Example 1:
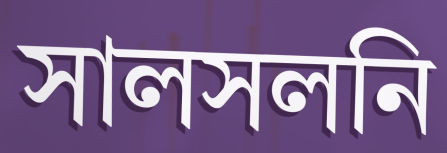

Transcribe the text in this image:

সালসলনি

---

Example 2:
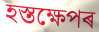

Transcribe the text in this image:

হস্তক্ষেপৰ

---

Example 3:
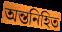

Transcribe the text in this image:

অন্তনিহিত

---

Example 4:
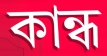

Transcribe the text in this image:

কান্ধ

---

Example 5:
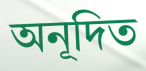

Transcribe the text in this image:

অনূদিত